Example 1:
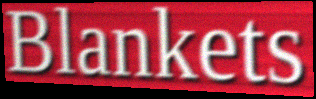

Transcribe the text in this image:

Blankets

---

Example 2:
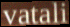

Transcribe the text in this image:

vatali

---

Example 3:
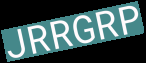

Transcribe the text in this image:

JRRGRP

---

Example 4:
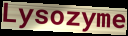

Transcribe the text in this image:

Lysozyme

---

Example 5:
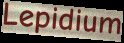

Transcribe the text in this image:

Lepidium